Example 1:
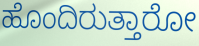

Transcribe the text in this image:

ಹೊಂದಿರುತ್ತಾರೋ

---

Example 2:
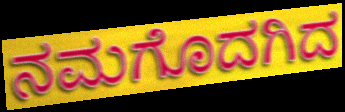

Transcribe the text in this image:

ನಮಗೊದಗಿದ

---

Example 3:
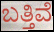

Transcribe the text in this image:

ಬತ್ತಿವೆ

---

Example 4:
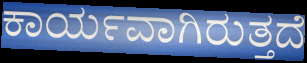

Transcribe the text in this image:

ಕಾರ್ಯವಾಗಿರುತ್ತದೆ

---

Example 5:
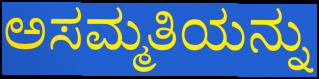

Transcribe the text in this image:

ಅಸಮ್ಮತಿಯನ್ನು